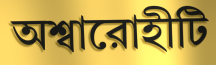
অশ্বারোহীটি